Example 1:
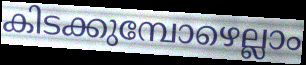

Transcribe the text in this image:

കിടക്കുമ്പോഴെല്ലാം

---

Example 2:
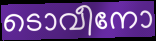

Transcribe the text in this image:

ടൊവീനോ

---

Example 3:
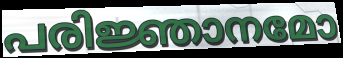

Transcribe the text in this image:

പരിജ്ഞാനമോ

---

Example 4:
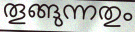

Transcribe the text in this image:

തൂങ്ങുന്നതും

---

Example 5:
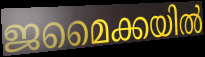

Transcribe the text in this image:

ജമൈക്കയിൽ